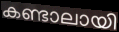
കണ്ടാലായി